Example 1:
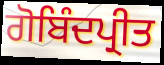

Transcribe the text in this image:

ਗੋਬਿੰਦਪ੍ਰੀਤ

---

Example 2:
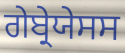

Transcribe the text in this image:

ਗੇਬ੍ਰੇਯੇਸਸ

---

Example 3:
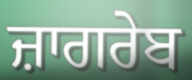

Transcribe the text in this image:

ਜ਼ਾਗਰੇਬ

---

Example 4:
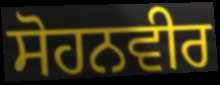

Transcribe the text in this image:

ਸੋਹਨਵੀਰ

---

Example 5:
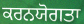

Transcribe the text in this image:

ਕਰਨਯੋਗਤਾ